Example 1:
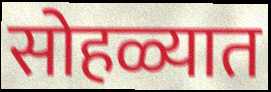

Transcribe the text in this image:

सोहळ्यात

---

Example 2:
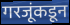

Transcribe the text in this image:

गरजूंकडून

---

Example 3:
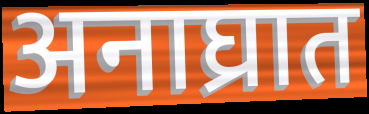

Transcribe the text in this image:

अनाघ्रात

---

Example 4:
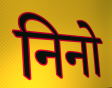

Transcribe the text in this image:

निनो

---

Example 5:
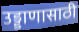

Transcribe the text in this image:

उड्डाणासाठी